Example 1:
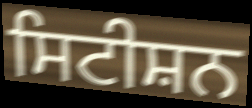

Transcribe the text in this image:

ਸਿਟੀਸ਼ਨ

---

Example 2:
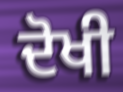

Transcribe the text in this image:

ਦੋਖੀ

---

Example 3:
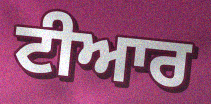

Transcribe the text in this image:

ਟੀਆਰ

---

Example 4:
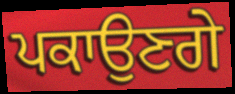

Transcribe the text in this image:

ਪਕਾਉਣਗੇ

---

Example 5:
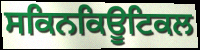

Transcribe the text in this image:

ਸਕਿਨਕਿਊਟਿਕਲ